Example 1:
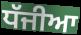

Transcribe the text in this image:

ਧੱਜੀਆ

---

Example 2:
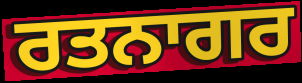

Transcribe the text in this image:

ਰਤਨਾਗਰ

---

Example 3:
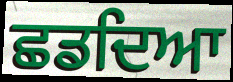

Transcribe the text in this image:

ਛਡਦਿਆ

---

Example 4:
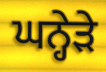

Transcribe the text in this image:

ਘਨ੍ਹੇੜੇ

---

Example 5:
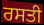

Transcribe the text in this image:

ਰਸਤੀ